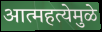
आत्महत्येमुळे